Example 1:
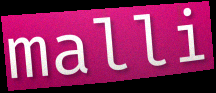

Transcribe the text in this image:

malli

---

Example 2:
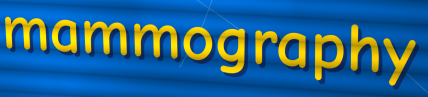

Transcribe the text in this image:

mammography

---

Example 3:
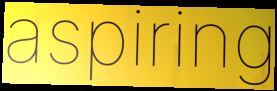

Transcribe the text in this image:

aspiring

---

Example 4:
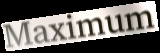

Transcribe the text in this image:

Maximum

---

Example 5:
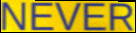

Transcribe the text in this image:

NEVER